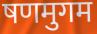
षणमुगम